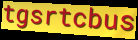
tgsrtcbus